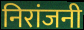
निरांजनी